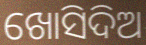
ଖୋସିଦିଅ